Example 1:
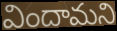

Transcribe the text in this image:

విందామని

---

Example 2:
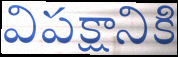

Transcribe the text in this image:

విపక్షానికి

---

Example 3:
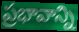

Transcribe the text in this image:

ప్రభావాన్ని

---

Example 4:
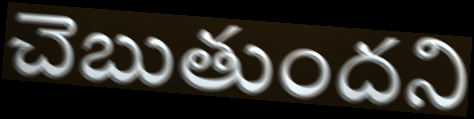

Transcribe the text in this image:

చెబుతుందని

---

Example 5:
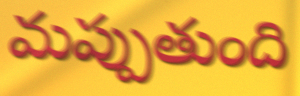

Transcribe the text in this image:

మప్పుతుంది